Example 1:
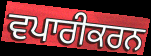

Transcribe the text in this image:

ਵਪਾਰੀਕਰਨ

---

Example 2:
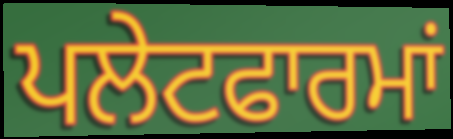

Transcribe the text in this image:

ਪਲੇਟਫਾਰਮਾਂ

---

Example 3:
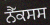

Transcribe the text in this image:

ਨੈੱਕਸਸ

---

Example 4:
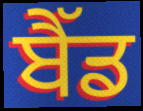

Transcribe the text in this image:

ਬੈੱਡ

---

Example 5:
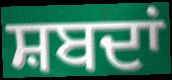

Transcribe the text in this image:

ਸ਼ਬਦਾਂ